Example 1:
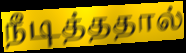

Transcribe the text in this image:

நீடித்ததால்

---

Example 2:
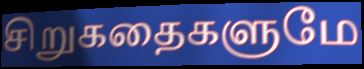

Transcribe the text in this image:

சிறுகதைகளுமே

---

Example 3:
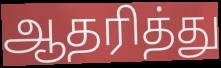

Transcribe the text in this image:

ஆதரித்து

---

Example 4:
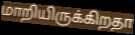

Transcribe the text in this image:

மாறியிருக்கிறதா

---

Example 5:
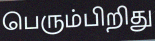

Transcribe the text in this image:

பெரும்பிறிது